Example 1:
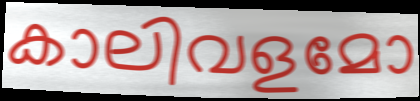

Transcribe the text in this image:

കാലിവളമോ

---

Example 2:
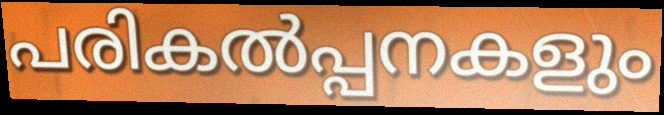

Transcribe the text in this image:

പരികൽപ്പനകളും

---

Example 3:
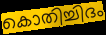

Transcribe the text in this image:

കൊതിച്ചിദം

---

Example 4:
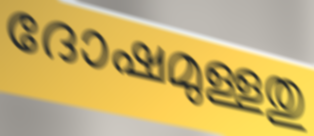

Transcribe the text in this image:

ദോഷമുള്ളതു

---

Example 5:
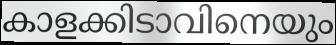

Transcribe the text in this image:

കാളക്കിടാവിനെയും